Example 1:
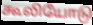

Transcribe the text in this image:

கூலியோடு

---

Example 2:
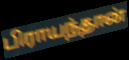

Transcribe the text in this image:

பிராயந்தான்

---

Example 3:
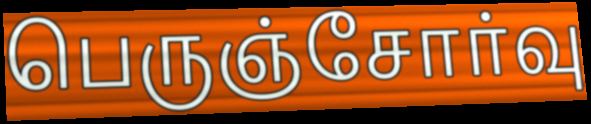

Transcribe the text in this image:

பெருஞ்சோர்வு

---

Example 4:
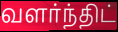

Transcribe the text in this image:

வளர்ந்திட்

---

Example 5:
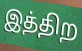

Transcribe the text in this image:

இத்திற